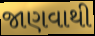
જાણવાથી